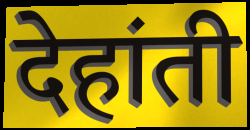
देहांती